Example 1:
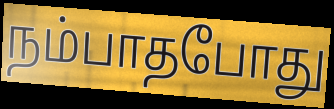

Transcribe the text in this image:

நம்பாதபோது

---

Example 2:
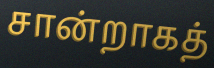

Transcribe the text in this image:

சான்றாகத்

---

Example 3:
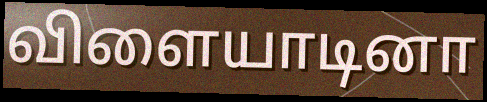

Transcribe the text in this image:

விளையாடினா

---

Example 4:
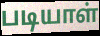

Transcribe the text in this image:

படியாள்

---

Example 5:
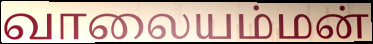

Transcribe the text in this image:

வாலையம்மன்